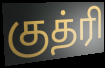
குத்ரி